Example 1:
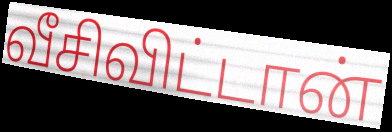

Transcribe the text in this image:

வீசிவிட்டான்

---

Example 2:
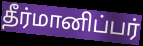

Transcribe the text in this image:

தீர்மானிப்பர்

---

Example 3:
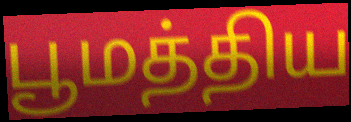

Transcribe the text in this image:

பூமத்திய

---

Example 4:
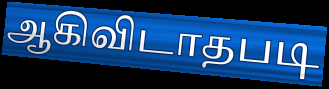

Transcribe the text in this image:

ஆகிவிடாதபடி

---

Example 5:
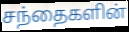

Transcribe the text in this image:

சந்தைகளின்